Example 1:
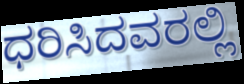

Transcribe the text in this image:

ಧರಿಸಿದವರಲ್ಲಿ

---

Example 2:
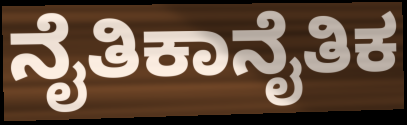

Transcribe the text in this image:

ನೈತಿಕಾನೈತಿಕ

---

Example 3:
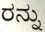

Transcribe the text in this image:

ರನ್ನು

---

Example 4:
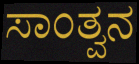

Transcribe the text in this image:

ಸಾಂತ್ವನ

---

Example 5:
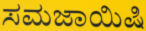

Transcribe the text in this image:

ಸಮಜಾಯಿಷಿ